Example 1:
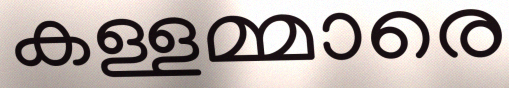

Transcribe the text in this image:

കള്ളമ്മാരെ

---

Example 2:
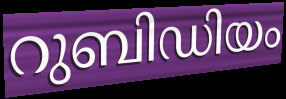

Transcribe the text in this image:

റുബിഡിയം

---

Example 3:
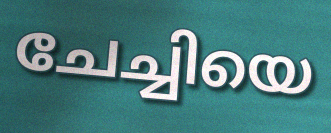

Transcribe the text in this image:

ചേച്ചിയെ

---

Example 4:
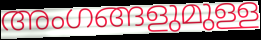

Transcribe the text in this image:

അംഗങ്ങളുമുള്ള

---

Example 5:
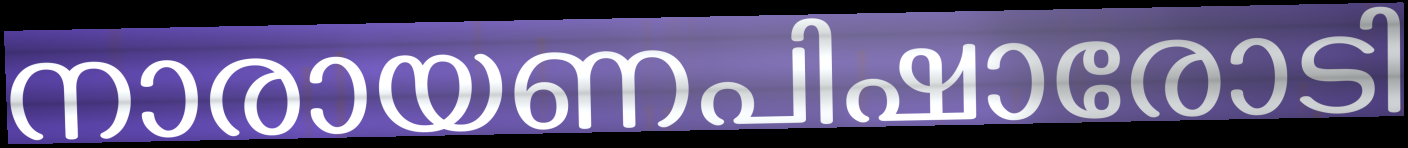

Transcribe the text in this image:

നാരായണപിഷാരോടി